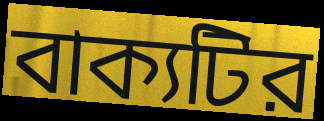
বাক্যটির